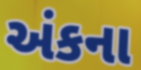
અંકના